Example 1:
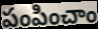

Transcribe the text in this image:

పంపించాం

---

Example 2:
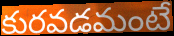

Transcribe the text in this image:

కురవడమంటే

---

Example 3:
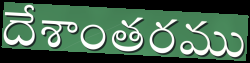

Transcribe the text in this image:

దేశాంతరము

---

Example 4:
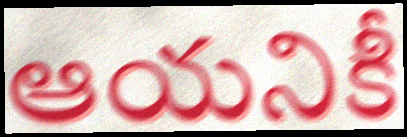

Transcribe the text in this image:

ఆయనికీ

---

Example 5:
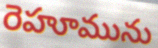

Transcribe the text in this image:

రెహూమును